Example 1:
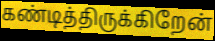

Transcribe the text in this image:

கண்டித்திருக்கிறேன்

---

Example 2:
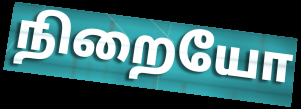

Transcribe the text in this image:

நிறையோ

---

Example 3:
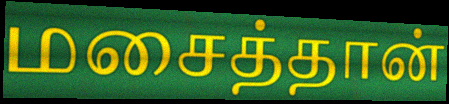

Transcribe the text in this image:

மசைத்தான்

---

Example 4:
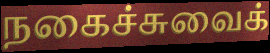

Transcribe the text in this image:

நகைச்சுவைக்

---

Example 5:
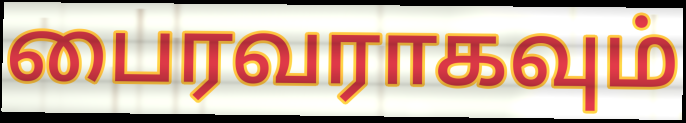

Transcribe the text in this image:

பைரவராகவும்